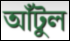
আঁটুল